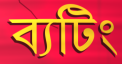
ব্যটিং